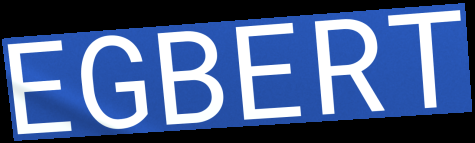
EGBERT